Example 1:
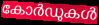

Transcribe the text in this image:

കോർഡുകൾ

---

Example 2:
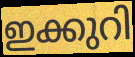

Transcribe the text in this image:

ഇക്കുറി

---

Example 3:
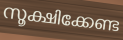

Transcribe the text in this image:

സൂക്ഷിക്കേണ്ട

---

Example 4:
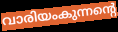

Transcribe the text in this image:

വാരിയംകുന്നന്റെ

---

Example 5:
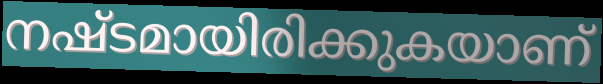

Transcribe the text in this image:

നഷ്ടമായിരിക്കുകയാണ്